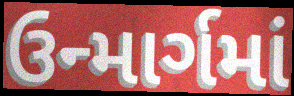
ઉન્માર્ગમાં